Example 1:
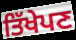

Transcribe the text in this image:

ਤਿੱਖੇਪਣ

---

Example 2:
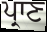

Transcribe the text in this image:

ਪ੍ਰਾਣ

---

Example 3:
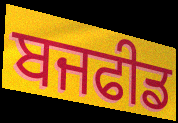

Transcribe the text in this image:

ਬਜਫੀਡ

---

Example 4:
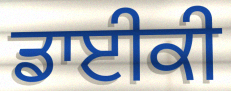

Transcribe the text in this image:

ਡਾਈਕੀ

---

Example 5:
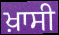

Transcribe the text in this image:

ਖ਼ਾਸੀ